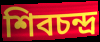
শিবচন্দ্র